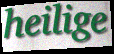
heilige